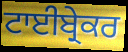
ਟਾਈਬ੍ਰੇਕਰ